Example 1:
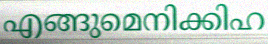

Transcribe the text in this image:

എങ്ങുമെനിക്കിഹ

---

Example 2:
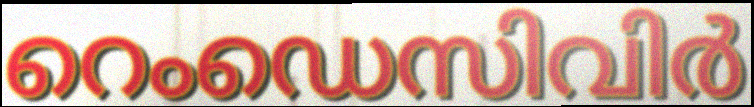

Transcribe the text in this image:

റെംഡെസിവിർ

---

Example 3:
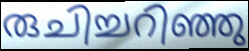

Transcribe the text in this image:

രുചിച്ചറിഞ്ഞു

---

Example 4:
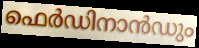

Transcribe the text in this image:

ഫെർഡിനാൻഡും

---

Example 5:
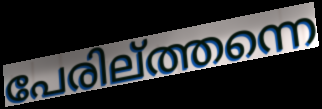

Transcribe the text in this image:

പേരില്ത്തന്നെ